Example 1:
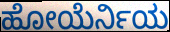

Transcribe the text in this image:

ಹೋಯೆರ್ನಿಯ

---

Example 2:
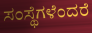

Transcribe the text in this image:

ಸಂಸ್ಥೆಗಳೆಂದರೆ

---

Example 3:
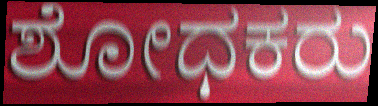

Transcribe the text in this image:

ಶೋಧಕರು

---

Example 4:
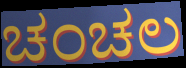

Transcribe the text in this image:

ಚಂಚಲ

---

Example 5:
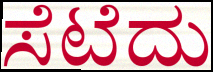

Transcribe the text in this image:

ಸೆಟೆದು